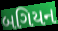
બગિયન